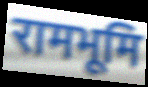
रामभूमि